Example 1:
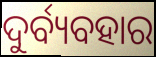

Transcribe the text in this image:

ଦୁର୍ବ୍ୟବହାର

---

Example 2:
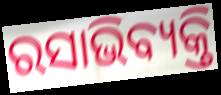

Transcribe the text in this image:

ରସାଭିବ୍ୟକ୍ତି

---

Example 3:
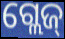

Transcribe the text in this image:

ଗ୍ଲେଜ୍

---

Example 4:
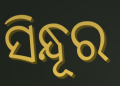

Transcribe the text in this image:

ସିନ୍ଧୂର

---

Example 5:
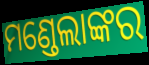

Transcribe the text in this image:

ମଣ୍ଡେଲାଙ୍କର